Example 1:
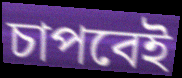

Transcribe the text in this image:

চাপবেই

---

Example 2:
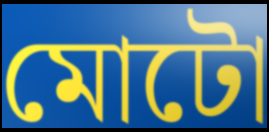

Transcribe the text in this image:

মোটো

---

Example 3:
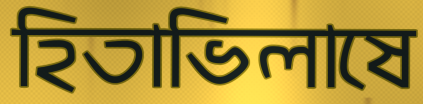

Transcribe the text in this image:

হিতাভিলাষে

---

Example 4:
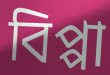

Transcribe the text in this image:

বিপ্পা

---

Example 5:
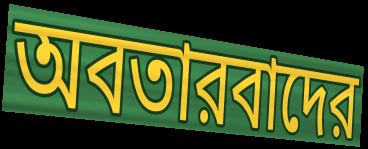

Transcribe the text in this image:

অবতারবাদের